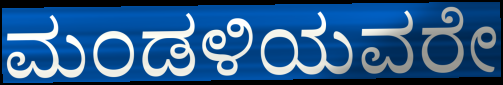
ಮಂಡಳಿಯವರೇ